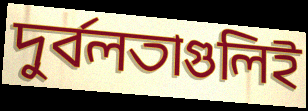
দুর্বলতাগুলিই